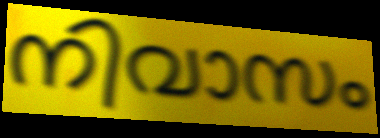
നിവാസം